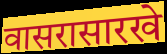
वासरासारखे